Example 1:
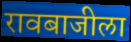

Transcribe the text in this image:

रावबाजीला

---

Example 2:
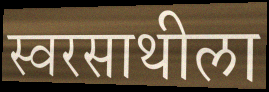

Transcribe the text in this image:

स्वरसाथीला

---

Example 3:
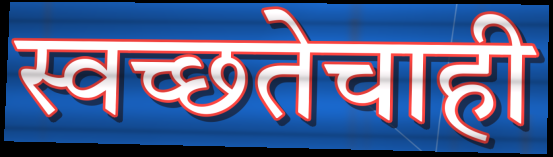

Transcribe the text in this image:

स्वच्छतेचाही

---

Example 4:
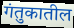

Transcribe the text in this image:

गंतुकातील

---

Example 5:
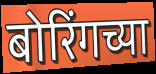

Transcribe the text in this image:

बोरिंगच्या